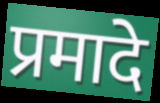
प्रमादे